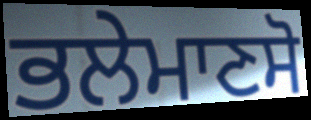
ਭਲੇਮਾਣਸੋ